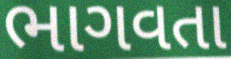
ભાગવતા